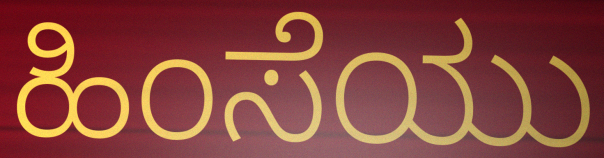
ಹಿಂಸೆಯು